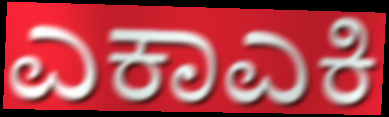
ಎಕಾಎಕಿ